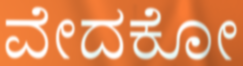
ವೇದಕೋ